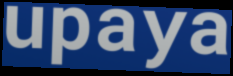
upaya